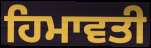
ਹਿਮਾਵਤੀ